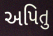
અપિતુ